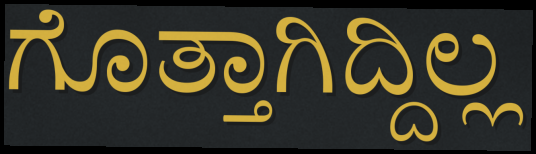
ಗೊತ್ತಾಗಿದ್ದಿಲ್ಲ